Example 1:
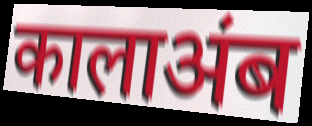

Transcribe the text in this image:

कालाअंब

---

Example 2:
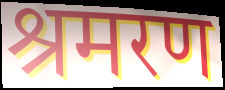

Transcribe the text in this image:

श्रमरण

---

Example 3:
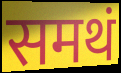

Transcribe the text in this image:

समथं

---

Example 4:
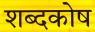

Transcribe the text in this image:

शब्दकोष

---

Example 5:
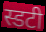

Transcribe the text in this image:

स्डटी